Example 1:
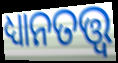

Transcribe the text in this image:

ଧ୍ୟାନତତ୍ତ୍ୱ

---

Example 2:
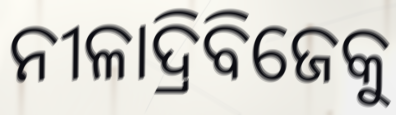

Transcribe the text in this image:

ନୀଳାଦ୍ରିବିଜେକୁ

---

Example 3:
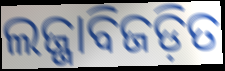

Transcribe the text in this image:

ଲଜ୍ଜାବିଜଡ଼ିତ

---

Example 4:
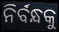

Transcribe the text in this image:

ନିର୍ବନ୍ଧକୁ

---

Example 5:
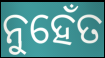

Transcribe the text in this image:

ନୁହେଁତ